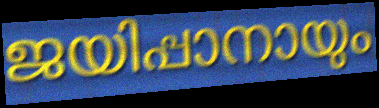
ജയിപ്പാനായും